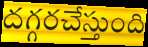
దగ్గరచేస్తుంది